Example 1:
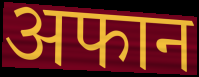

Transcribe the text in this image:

अफान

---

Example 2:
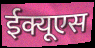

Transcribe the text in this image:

ईक्यूएस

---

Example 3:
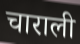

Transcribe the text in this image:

चाराली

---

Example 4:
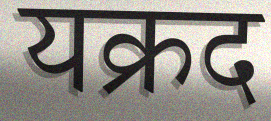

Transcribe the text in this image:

यक्रद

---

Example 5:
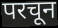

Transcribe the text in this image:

परचून